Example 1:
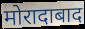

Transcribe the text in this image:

मोरादाबाद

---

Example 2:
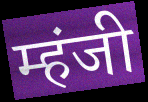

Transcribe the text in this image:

म्हंजी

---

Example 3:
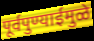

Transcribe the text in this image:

पूर्वपुण्याईमुळे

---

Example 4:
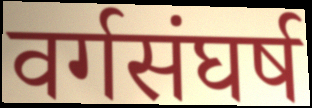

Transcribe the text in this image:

वर्गसंघर्ष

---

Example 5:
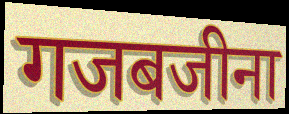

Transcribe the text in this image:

गजबजीना